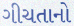
ગીચતાનો